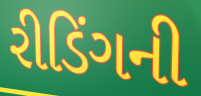
રીડિંગની